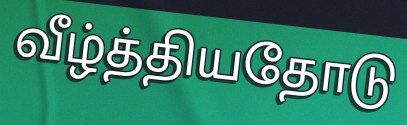
வீழ்த்தியதோடு